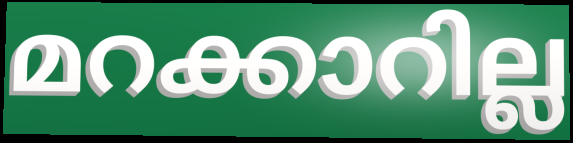
മറക്കാറില്ല